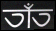
তাঁত